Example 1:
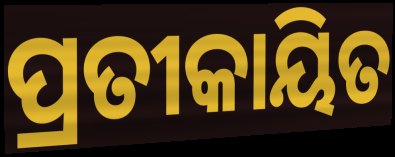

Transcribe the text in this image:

ପ୍ରତୀକାୟିତ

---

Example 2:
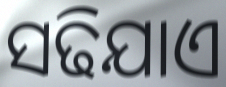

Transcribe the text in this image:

ସଢିଯାଏ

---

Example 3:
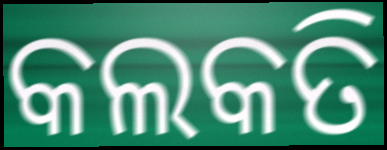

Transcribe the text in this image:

କଲକତି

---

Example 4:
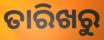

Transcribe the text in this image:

ତାରିଖରୁ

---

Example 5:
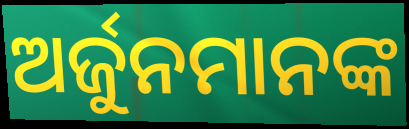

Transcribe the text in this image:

ଅର୍ଜୁନମାନଙ୍କ